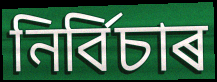
নিৰ্বিচাৰ